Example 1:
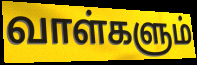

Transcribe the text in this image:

வாள்களும்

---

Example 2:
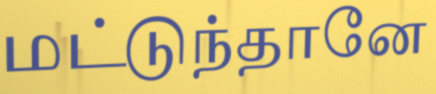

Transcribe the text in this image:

மட்டுந்தானே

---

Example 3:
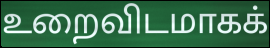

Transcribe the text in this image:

உறைவிடமாகக்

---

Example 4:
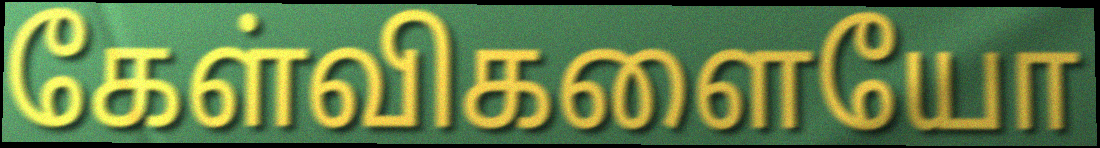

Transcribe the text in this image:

கேள்விகளையோ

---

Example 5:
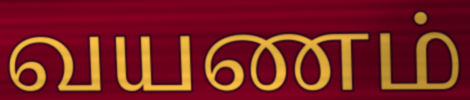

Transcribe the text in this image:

வயணம்